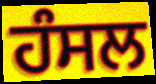
ਹੰਸਲ